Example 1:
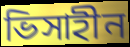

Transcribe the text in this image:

ভিসাহীন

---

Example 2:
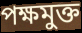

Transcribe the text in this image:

পক্ষমুক্ত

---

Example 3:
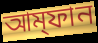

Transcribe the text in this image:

আম্‌ফান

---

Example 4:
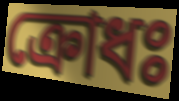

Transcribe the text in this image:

ক্রোধঃ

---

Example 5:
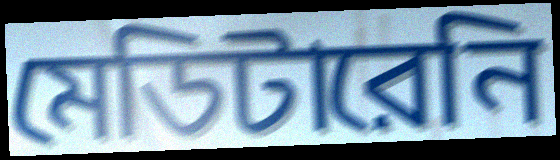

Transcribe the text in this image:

মেডিটারেনি